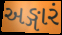
અઙ્ગારં